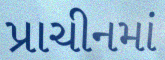
પ્રાચીનમાં